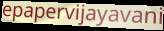
epapervijayavani